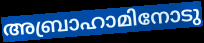
അബ്രാഹാമിനോടു